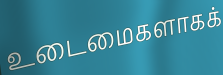
உடைமைகளாகக்